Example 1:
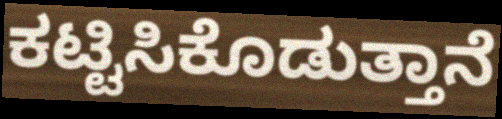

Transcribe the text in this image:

ಕಟ್ಟಿಸಿಕೊಡುತ್ತಾನೆ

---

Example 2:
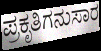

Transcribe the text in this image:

ಪ್ರಕೃತಿಗನುಸಾರ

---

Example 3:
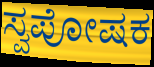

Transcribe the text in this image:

ಸ್ವಪೋಷಕ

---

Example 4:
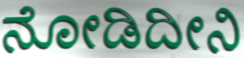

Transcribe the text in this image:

ನೋಡಿದೀನಿ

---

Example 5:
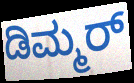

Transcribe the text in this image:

ಡಿಮ್ಮರ್